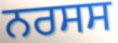
ਨਰਸਸ